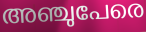
അഞ്ചുപേരെ